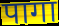
पागा